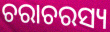
ଚରାଚରସ୍ୟ